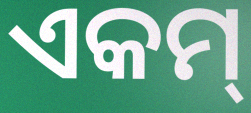
ଏକମ୍